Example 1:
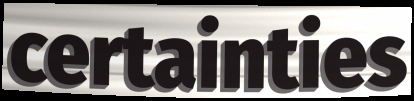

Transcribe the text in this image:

certainties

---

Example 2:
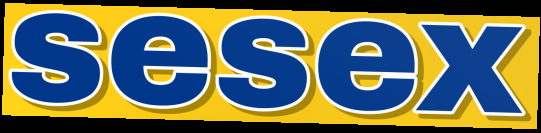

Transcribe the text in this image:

sesex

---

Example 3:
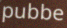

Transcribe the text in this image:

pubbe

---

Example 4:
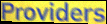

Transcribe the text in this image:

Providers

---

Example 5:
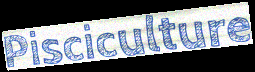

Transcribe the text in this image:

Pisciculture